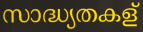
സാദ്ധ്യതകള്